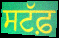
ਸਟੱਫ਼